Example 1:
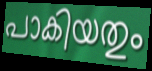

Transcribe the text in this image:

പാകിയതും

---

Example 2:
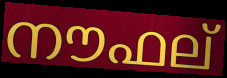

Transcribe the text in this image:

നൗഫല്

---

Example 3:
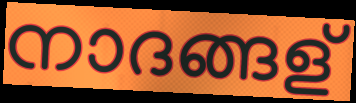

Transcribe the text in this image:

നാദങ്ങള്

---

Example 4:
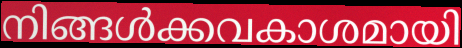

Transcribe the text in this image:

നിങ്ങൾക്കവകാശമായി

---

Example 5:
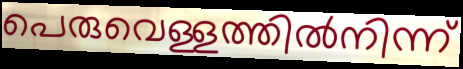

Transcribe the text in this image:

പെരുവെള്ളത്തിൽനിന്ന്